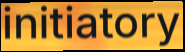
initiatory